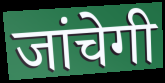
जांचेगी